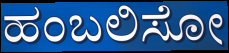
ಹಂಬಲಿಸೋ